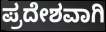
ಪ್ರದೇಶವಾಗಿ